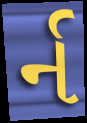
ર્ન